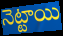
నెట్టాయి